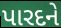
પારદને